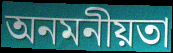
অনমনীয়তা